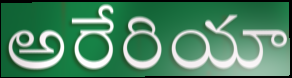
అరేరియా